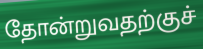
தோன்றுவதற்குச்